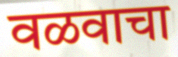
वळवाचा